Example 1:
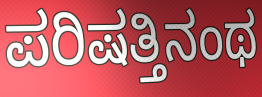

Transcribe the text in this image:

ಪರಿಷತ್ತಿನಂಥ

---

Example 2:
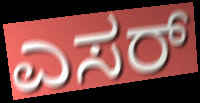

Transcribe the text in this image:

ಎಸರ್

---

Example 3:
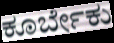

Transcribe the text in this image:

ಕೂರ್ಬೇಕು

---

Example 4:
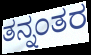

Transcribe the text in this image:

ತನ್ನಂತರ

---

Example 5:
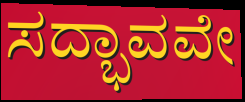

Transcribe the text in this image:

ಸದ್ಭಾವವೇ